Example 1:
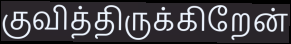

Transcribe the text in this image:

குவித்திருக்கிறேன்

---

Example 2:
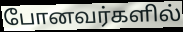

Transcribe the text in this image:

போனவர்களில்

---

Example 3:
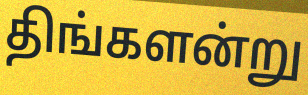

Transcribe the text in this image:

திங்களன்று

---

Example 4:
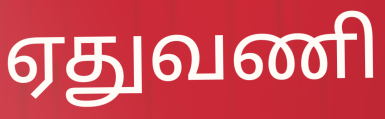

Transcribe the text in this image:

ஏதுவணி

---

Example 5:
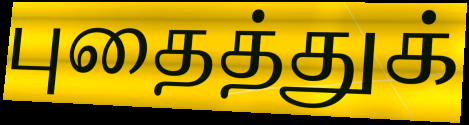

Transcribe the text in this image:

புதைத்துக்